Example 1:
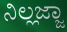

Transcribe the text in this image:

ನಿಲ್ಲಜ್ಜಾ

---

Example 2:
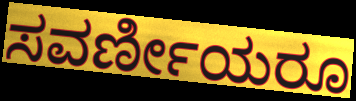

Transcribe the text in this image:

ಸವರ್ಣೀಯರೂ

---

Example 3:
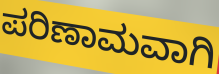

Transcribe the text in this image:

ಪರಿಣಾಮವಾಗಿ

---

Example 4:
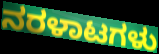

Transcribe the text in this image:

ನರಳಾಟಗಳು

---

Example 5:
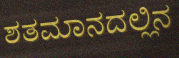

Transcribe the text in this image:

ಶತಮಾನದಲ್ಲಿನ